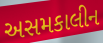
અસમકાલીન